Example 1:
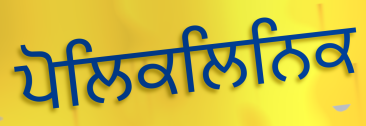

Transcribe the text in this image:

ਪੋਲਿਕਲਿਨਿਕ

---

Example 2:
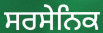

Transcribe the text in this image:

ਸਰਸੇਨਿਕ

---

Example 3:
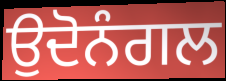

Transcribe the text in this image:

ਉਦੋਨੰਗਲ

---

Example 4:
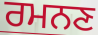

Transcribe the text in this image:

ਰਮਨਣ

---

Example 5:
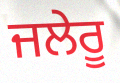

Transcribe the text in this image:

ਜਲੇਰੂ